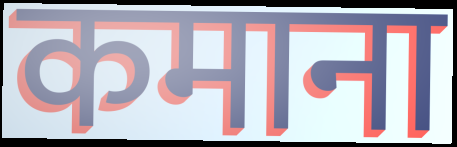
कमाना